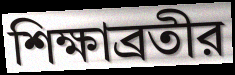
শিক্ষাব্রতীর